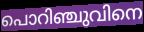
പൊറിഞ്ചുവിനെ